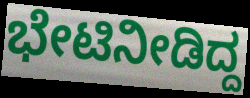
ಭೇಟಿನೀಡಿದ್ದ